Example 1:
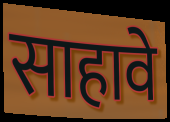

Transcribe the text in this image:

साहावे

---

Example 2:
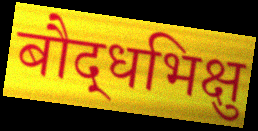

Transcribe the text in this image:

बौद्धभिक्षु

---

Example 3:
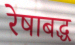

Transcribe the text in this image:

रेषाबद्ध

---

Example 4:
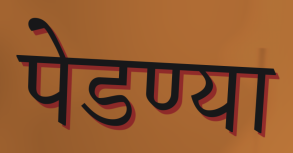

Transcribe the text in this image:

पेडण्या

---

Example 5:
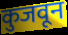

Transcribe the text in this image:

कुजवून